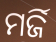
ମର୍ଜି